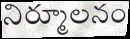
నిర్మూలనం